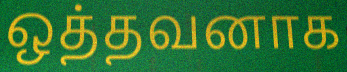
ஒத்தவனாக